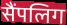
सैंपलिग